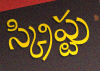
స్క్రిప్టు